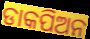
ଡାକପିଅନ